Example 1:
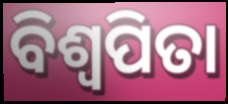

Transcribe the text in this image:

ବିଶ୍ୱପିତା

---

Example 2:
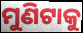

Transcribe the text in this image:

ମୁଣିଟାକୁ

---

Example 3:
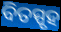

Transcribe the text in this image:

ବିତସ୍ପୃହ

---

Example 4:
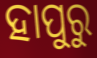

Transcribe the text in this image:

ହାପୁରୁ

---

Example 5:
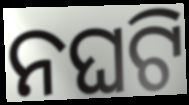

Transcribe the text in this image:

ନଘଟି